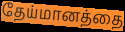
தேய்மானத்தை